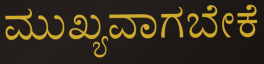
ಮುಖ್ಯವಾಗಬೇಕೆ